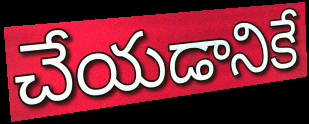
చేయడానికే